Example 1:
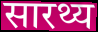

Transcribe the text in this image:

सारथ्य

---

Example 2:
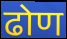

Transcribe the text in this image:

ढोण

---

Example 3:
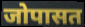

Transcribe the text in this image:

जोपासत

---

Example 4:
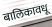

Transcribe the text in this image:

बालिकावधू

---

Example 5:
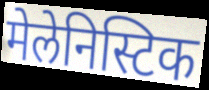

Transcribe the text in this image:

मेलेनिस्टिक